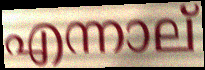
എന്നാല്